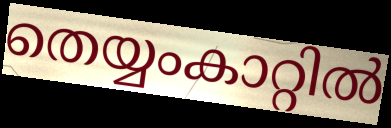
തെയ്യംകാറ്റിൽ